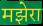
मझेरा